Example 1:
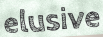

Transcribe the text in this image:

elusive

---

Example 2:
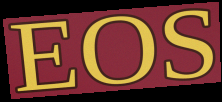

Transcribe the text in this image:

EOS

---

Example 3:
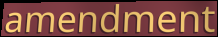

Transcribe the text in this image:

amendment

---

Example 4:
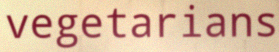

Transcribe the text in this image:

vegetarians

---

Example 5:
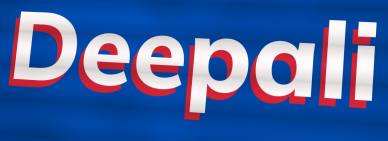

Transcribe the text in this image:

Deepali